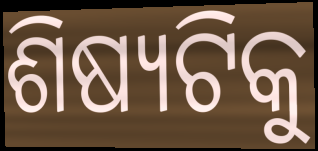
ଶିଷ୍ୟଟିକୁ